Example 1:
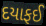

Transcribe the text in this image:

દયાફઈ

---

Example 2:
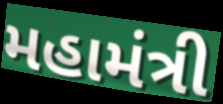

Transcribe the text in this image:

મહામંત્રી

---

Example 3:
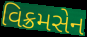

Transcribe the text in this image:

વિક્રમસેન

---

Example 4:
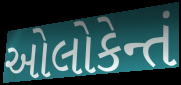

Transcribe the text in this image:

ઓલોકેન્તં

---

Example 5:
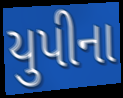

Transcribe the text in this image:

યુપીના